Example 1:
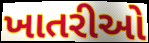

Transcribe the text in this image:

ખાતરીઓ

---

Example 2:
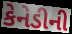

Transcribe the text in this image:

કેનેડીની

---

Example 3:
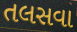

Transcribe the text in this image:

તલસવા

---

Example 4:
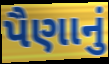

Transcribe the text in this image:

પૈણાનું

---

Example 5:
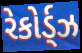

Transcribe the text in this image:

રેકોર્ડ્ઝ